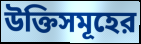
উক্তিসমূহের